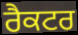
ਰੈਕਟਰ